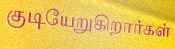
குடியேறுகிறார்கள்